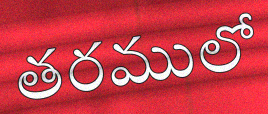
తరములో